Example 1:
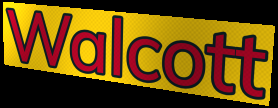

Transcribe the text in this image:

Walcott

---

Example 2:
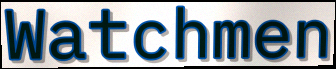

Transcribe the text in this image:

Watchmen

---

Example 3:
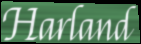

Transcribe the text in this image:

Harland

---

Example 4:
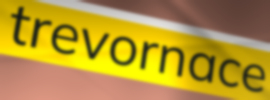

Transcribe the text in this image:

trevornace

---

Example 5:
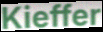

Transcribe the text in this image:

Kieffer